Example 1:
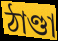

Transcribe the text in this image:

ঠাণ্ডা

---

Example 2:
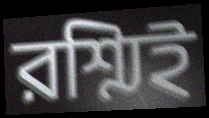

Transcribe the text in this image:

রশ্মিই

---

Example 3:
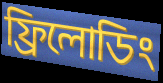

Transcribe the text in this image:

ফ্রিলোডিং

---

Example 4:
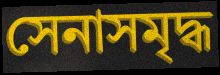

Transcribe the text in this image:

সেনাসমৃদ্ধ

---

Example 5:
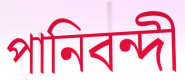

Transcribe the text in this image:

পানিবন্দী